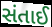
સંતાઈ